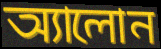
অ্যালোন